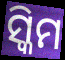
ସ୍କିମ